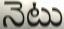
నెటు